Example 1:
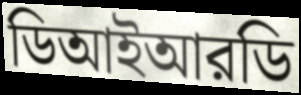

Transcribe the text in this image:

ডিআইআরডি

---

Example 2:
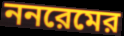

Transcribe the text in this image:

ননরেমের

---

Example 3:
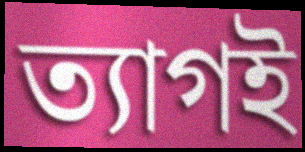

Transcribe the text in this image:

ত্যাগই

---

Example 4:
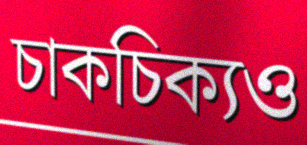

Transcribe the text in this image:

চাকচিক্যও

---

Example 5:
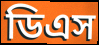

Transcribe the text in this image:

ডিএস